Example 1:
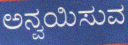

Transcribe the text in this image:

ಅನ್ವಯಿಸುವ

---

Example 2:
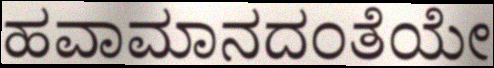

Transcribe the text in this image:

ಹವಾಮಾನದಂತೆಯೇ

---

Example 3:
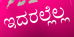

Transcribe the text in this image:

ಇದರಲ್ಲೆಲ್ಲ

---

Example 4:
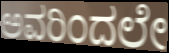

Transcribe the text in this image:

ಅವರಿಂದಲೇ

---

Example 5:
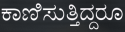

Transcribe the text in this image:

ಕಾಣಿಸುತ್ತಿದ್ದರೂ